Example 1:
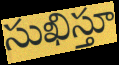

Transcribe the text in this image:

సుఖిస్తూ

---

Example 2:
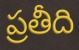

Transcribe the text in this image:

ప్రతీది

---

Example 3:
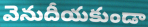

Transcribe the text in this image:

వెనుదీయకుండా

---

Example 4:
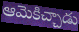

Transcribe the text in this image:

ఆమెకిచ్చాడు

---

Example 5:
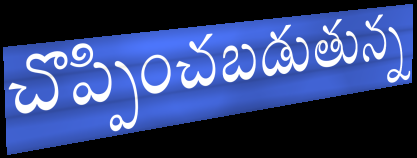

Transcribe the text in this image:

చొప్పించబడుతున్న